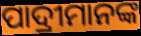
ପାଦ୍ରୀମାନଙ୍କ